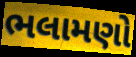
ભલામણો